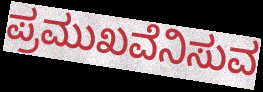
ಪ್ರಮುಖವೆನಿಸುವ